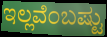
ಇಲ್ಲವೆಂಬಷ್ಟು